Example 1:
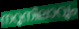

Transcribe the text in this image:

നറുനിലാവും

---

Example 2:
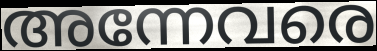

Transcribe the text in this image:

അന്നേവരെ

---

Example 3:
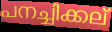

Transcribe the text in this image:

പനച്ചിക്കല്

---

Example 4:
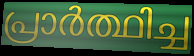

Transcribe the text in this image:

പ്രാർത്ഥിച്ച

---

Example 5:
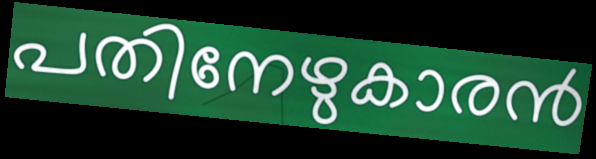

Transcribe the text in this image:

പതിനേഴുകാരൻ